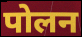
पोलन